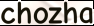
chozha